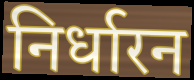
निर्धारन